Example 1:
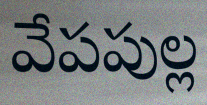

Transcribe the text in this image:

వేపపుల్ల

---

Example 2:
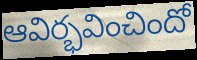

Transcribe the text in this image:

ఆవిర్భవించిందో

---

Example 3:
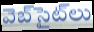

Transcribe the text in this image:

వెబ్‌సైట్‌లు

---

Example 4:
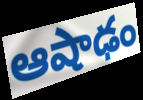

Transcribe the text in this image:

ఆషాఢం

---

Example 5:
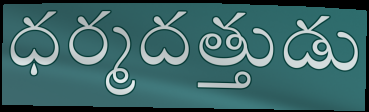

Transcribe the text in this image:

ధర్మదత్తుడు